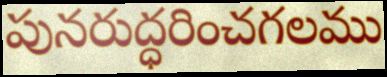
పునరుద్ధరించగలము